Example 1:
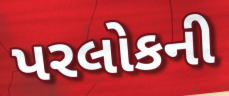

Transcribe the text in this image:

પરલોકની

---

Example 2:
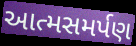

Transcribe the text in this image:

આત્મસમર્પણ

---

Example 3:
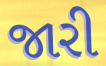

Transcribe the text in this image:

જારી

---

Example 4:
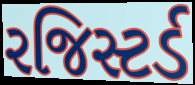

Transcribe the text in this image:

રજિસ્ટર્ડ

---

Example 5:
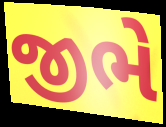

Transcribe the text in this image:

જીભે